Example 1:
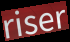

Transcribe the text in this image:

riser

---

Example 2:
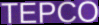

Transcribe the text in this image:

TEPCO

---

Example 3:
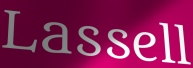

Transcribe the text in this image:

Lassell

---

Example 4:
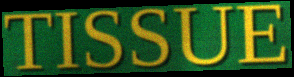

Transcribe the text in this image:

TISSUE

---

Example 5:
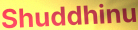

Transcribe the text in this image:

Shuddhinu